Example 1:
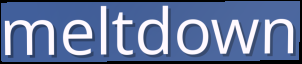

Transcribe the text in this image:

meltdown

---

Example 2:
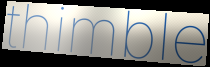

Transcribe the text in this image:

thimble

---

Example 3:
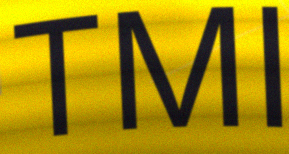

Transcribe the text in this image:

TMI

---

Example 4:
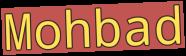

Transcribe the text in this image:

Mohbad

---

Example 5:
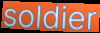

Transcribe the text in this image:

soldier